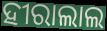
ହୀରାଲାଲ